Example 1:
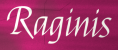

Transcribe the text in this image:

Raginis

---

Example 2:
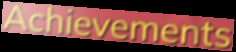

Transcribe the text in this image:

Achievements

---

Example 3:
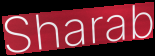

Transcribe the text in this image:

Sharab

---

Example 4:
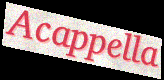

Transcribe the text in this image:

Acappella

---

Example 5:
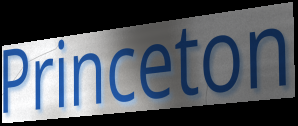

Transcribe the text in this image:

Princeton